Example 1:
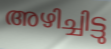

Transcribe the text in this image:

അഴിച്ചിട്ടു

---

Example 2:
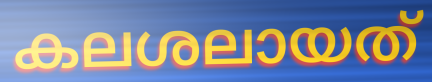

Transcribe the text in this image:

കലശലായത്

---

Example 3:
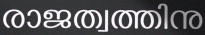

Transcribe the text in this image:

രാജത്വത്തിനു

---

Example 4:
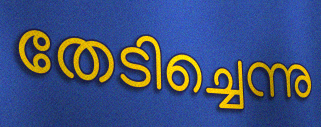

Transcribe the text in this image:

തേടിച്ചെന്നു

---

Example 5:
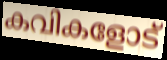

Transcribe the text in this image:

കവികളോട്